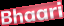
Bhaari